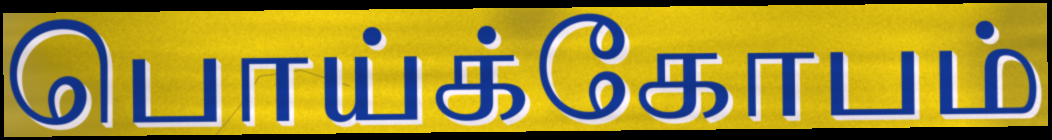
பொய்க்கோபம்